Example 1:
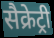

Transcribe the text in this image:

सैक्रेट्री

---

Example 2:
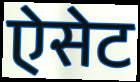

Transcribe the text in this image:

ऐसेट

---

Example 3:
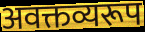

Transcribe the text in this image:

अवक्तव्यरूप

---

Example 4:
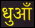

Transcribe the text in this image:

धुआँ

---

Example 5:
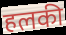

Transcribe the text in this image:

हलकी